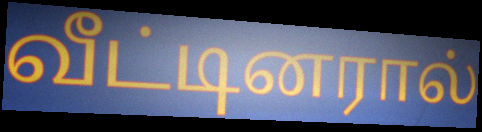
வீட்டினரால்